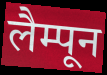
लैम्पून